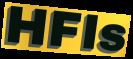
HFIs